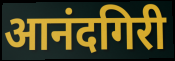
आनंदगिरी